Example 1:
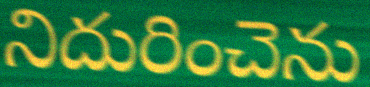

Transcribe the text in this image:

నిదురించెను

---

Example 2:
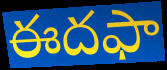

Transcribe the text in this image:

ఈదఫా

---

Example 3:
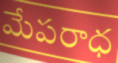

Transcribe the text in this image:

మేపరాధ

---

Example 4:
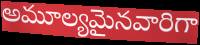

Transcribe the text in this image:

అమూల్యమైనవారిగా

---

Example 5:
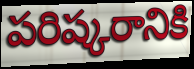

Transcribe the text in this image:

పరిష్కరానికి